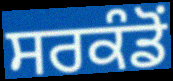
ਸਰਕੰਡੋਂ